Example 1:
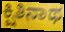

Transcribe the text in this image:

ಕ್ಷಿತಿನಾಥ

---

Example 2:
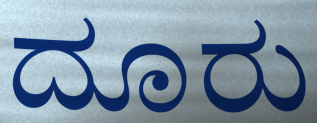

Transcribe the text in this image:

ದೂರು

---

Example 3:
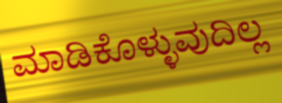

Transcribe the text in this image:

ಮಾಡಿಕೊಳ್ಳುವುದಿಲ್ಲ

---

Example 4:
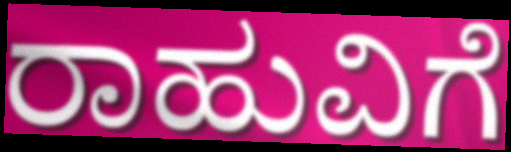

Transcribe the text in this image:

ರಾಹುವಿಗೆ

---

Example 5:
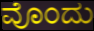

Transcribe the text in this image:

ವೊಂದು